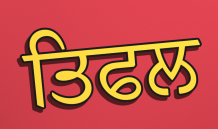
ਤਿਫਲ